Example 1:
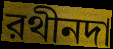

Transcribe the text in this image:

রথীনদা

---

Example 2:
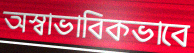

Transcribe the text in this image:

অস্বাভাবিকভাবে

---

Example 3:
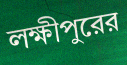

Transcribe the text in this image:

লক্ষীপুরের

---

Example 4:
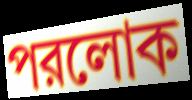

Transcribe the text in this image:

পরলোক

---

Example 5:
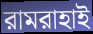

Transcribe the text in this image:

রামরাহাই